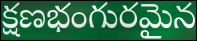
క్షణభంగురమైన